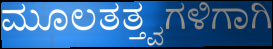
ಮೂಲತತ್ತ್ವಗಳಿಗಾಗಿ